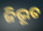
ଜିଭୂତ